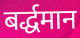
बर्द्धमान